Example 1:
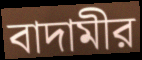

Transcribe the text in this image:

বাদামীর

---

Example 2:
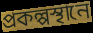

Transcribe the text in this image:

প্রকল্পস্থানে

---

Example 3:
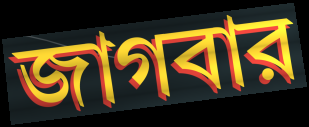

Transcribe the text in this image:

জাগবার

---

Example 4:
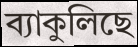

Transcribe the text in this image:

ব্যাকুলিছে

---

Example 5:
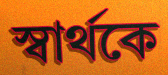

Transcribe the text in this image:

স্বার্থকে